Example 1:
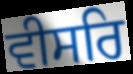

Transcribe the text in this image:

ਵੀਸਰਿ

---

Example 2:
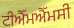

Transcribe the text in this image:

ਟੀਐੱਮਐੱਮਸੀ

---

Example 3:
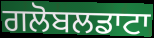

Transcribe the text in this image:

ਗਲੋਬਲਡਾਟਾ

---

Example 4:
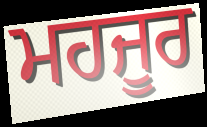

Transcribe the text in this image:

ਮਹਜੂਰ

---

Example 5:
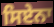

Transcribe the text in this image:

ਸਿਏਨਾ